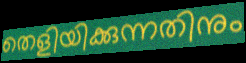
തെളിയിക്കുന്നതിനും